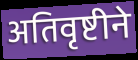
अतिवृष्टीने